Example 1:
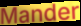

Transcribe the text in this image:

Mander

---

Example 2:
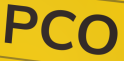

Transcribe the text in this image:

PCO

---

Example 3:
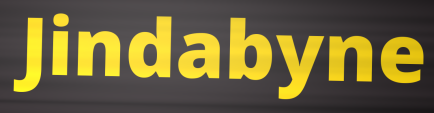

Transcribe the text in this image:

Jindabyne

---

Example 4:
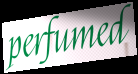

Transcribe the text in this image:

perfumed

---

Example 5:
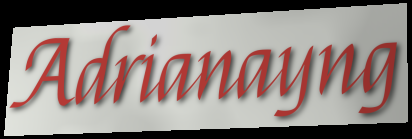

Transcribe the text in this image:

Adrianayng